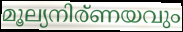
മൂല്യനിര്ണയവും